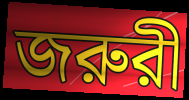
জরুরী